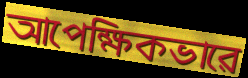
আপেক্ষিকভাৱে